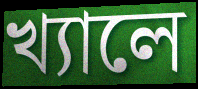
খ্যালে